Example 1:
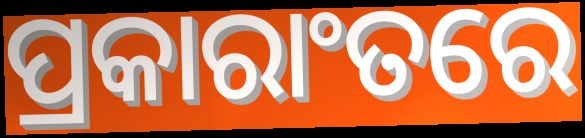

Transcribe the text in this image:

ପ୍ରକାରାଂତରେ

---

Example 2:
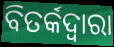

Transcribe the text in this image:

ବିତର୍କଦ୍ୱାରା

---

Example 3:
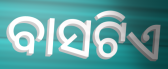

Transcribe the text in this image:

ବାସଟିଏ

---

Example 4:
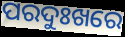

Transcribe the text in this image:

ପରଦୁଃଖରେ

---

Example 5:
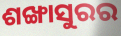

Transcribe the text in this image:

ଶଙ୍ଖାସୁରର